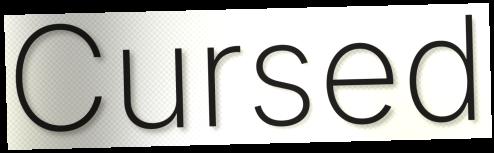
Cursed